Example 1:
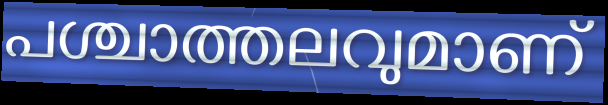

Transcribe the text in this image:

പശ്ചാത്തലവുമാണ്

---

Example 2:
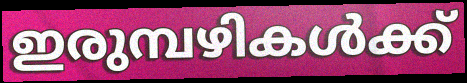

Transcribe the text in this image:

ഇരുമ്പഴികൾക്ക്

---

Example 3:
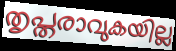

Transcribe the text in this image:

തൃപ്തരാവുകയില്ല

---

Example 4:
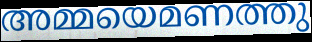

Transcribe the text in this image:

അമ്മയെമണത്തു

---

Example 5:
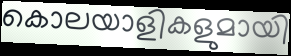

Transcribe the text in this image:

കൊലയാളികളുമായി